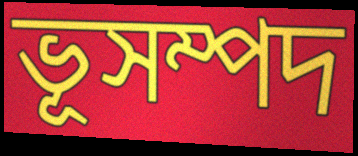
ভূসম্পদ